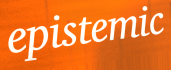
epistemic